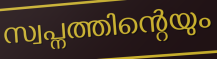
സ്വപ്നത്തിന്റെയും